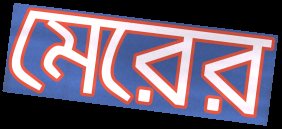
মেরের